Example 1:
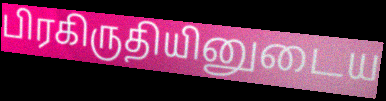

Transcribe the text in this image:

பிரகிருதியினுடைய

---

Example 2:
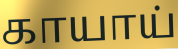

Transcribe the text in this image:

காயாய்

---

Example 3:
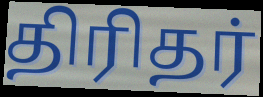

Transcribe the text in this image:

திரிதர்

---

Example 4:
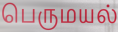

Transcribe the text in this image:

பெருமயல்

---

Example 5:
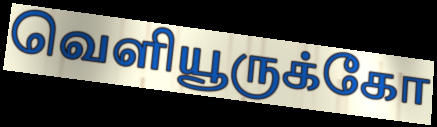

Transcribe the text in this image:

வெளியூருக்கோ